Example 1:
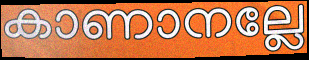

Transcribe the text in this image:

കാണാനല്ലേ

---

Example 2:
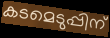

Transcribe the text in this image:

കടമെടുപ്പിന്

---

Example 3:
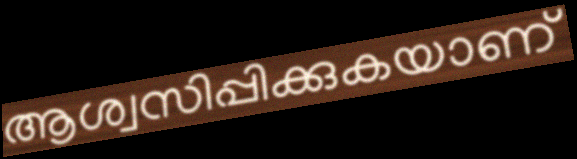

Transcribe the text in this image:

ആശ്വസിപ്പിക്കുകയാണ്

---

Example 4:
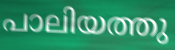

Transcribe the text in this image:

പാലിയത്തു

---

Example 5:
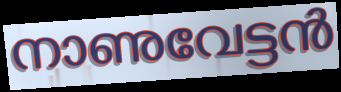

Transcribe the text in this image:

നാണുവേട്ടൻ